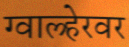
ग्वाल्हेरवर